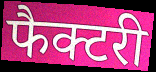
फैक्टरी